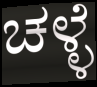
ಚಳ್ಳೆ